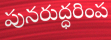
పునరుద్ధరింప